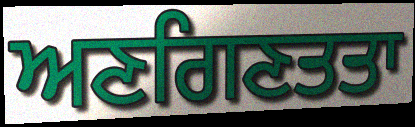
ਅਣਗਿਣਤਤਾ